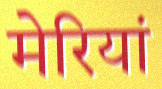
मेरियां